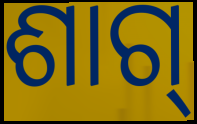
ଶାଗ୍